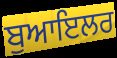
ਬੁਆਇਲਰ